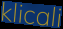
klicali